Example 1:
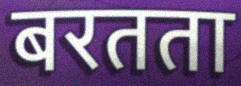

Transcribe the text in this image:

बरतता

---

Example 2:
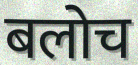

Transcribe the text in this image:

बलोच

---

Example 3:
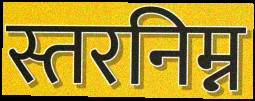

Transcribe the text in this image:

स्तरनिम्न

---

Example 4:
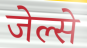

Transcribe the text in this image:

जेल्से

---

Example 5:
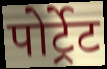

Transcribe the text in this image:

पोर्ट्रेट